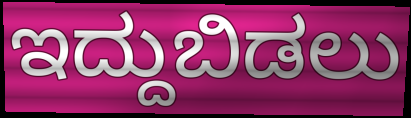
ಇದ್ದುಬಿಡಲು